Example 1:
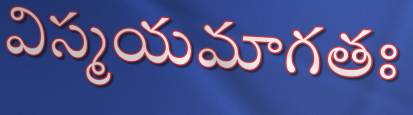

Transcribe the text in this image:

విస్మయమాగతః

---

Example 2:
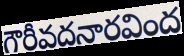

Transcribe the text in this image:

గౌరీవదనారవింద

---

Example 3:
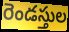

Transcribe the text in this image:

రెండస్తుల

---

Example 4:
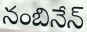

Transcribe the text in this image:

నంబినేన్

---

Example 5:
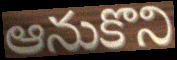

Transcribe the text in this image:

ఆనుకొని